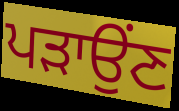
ਪੜਾਉਂਣ